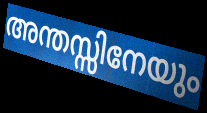
അന്തസ്സിനേയും